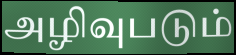
அழிவுபடும்